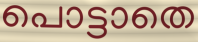
പൊട്ടാതെ